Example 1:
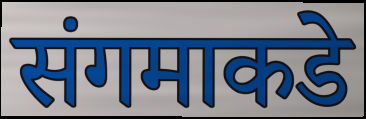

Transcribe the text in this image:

संगमाकडे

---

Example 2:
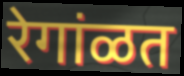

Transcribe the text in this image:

रेगांळत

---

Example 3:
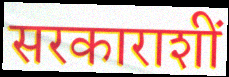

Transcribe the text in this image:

सरकाराशीं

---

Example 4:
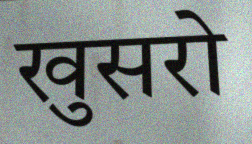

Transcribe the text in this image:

खुसरो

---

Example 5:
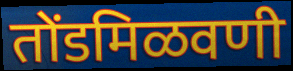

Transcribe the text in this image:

तोंडमिळवणी